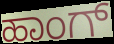
ಹಾಂಗ್